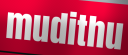
mudithu